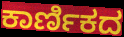
ಕಾರ್ಣಿಕದ